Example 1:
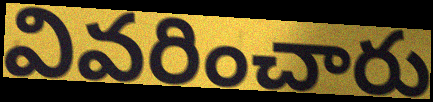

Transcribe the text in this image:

వివరించారు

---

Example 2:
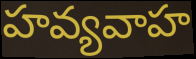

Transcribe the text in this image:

హవ్యవాహ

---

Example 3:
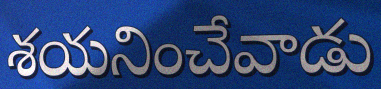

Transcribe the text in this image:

శయనించేవాడు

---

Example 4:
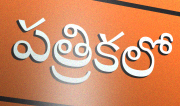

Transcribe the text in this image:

పత్రికలో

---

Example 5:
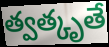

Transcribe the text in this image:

త్వత్కృతే